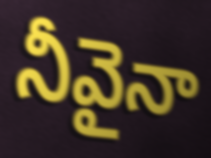
నీవైనా